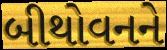
બીથોવનને